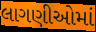
લાગણીઓમાં